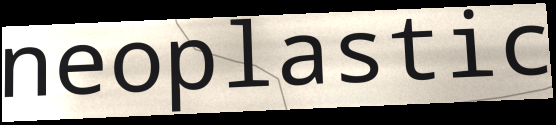
neoplastic